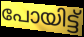
പോയിട്ട്